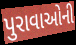
પુરાવાઓની